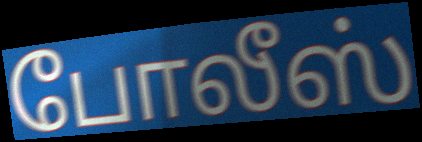
போலீஸ்